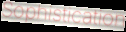
Sophistication